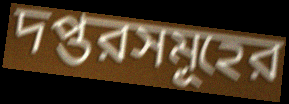
দপ্তরসমূহের